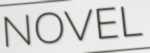
NOVEL